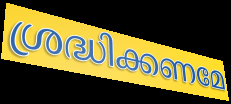
ശ്രദ്ധിക്കണമേ